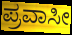
ಪ್ರವಾಸೀ